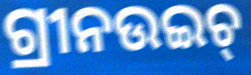
ଗ୍ରୀନଉଇଚ୍